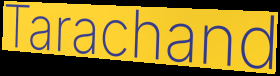
Tarachand